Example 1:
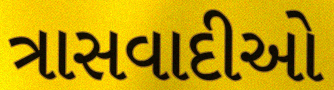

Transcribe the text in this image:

ત્રાસવાદીઓ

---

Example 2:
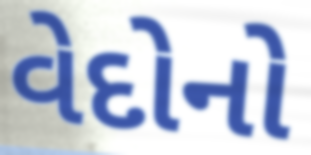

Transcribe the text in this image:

વેદોનો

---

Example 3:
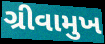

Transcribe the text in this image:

ગ્રીવામુખ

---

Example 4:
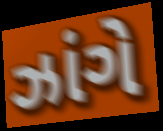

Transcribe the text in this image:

ઝાંગે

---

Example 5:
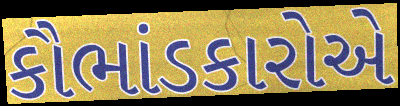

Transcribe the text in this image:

કૌભાંડકારોએ